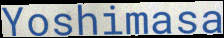
Yoshimasa